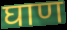
घाण